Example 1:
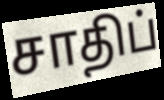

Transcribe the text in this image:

சாதிப்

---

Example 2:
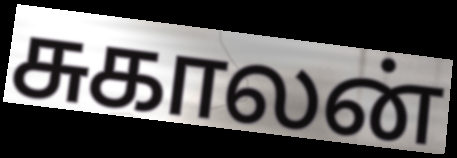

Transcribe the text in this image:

சுகாலன்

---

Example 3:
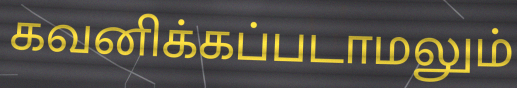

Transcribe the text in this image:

கவனிக்கப்படாமலும்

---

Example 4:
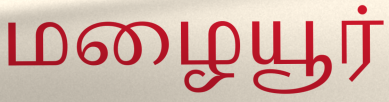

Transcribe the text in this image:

மழையூர்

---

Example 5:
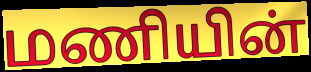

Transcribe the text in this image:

மணியின்